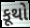
કૂથો